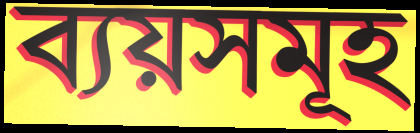
ব্যয়সমূহ